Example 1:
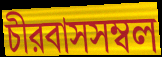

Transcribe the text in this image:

চীরবাসসম্বল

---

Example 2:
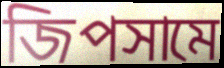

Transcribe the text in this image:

জিপসামে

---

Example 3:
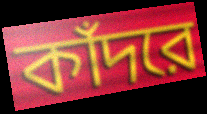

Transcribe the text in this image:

কাঁদরে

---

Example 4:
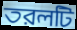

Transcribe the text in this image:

তরলটি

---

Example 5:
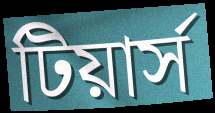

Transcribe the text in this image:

টিয়ার্স